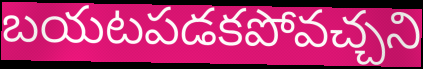
బయటపడకపోవచ్చని